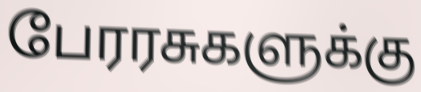
பேரரசுகளுக்கு